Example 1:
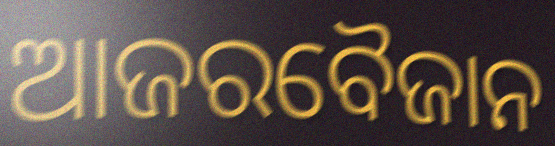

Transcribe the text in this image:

ଆଜରବୈଜାନ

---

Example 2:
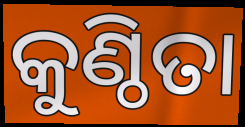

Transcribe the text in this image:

କୁଣ୍ଠିତା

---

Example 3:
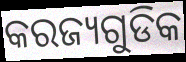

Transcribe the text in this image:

କରଜ୍ୟଗୁଡିକ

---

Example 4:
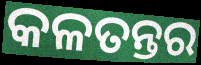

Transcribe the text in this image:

କଳତନ୍ତର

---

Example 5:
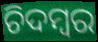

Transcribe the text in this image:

ଚିଦମ୍ବର